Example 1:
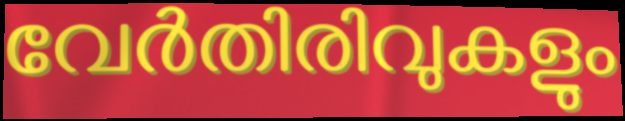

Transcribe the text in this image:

വേർതിരിവുകളും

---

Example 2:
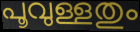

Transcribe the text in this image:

പൂവുള്ളതും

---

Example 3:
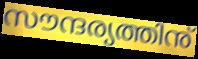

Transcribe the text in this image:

സൗന്ദര്യത്തിനു്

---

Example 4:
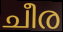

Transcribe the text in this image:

ചീര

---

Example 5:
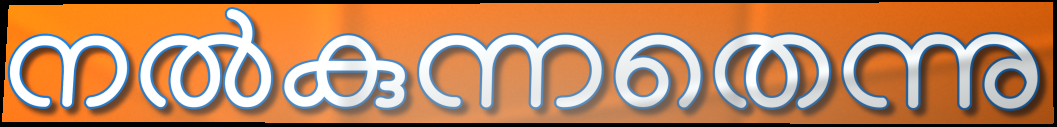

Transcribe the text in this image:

നൽകുന്നതെന്നു